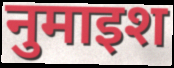
नुमाइश